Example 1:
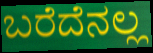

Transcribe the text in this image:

ಬರೆದೆನಲ್ಲ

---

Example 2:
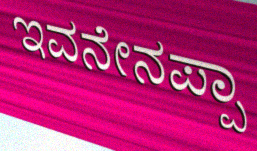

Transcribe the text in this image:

ಇವನೇನಪ್ಪಾ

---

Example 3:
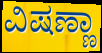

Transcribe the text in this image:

ವಿಷಣ್ಣಾ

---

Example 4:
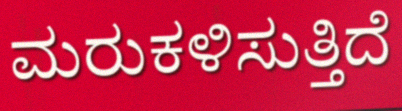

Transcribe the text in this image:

ಮರುಕಳಿಸುತ್ತಿದೆ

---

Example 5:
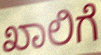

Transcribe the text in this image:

ಖಾಲಿಗೆ